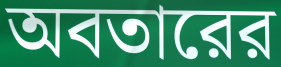
অবতারের